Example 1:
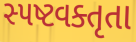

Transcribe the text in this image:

સ્પષ્ટવક્તૃતા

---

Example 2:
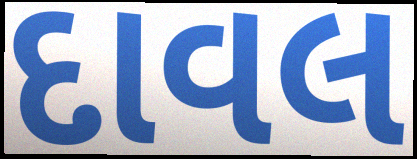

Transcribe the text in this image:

દાવલ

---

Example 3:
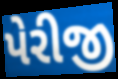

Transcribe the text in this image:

પેરીજી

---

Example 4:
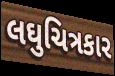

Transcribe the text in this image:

લઘુચિત્રકાર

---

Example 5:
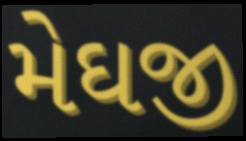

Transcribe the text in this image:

મેઘજી